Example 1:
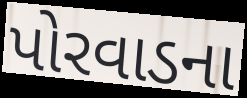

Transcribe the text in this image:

પોરવાડના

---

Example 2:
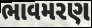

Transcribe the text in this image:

ભાવમરણ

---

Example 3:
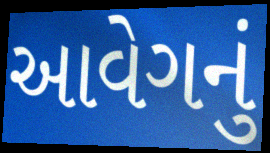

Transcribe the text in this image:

આવેગનું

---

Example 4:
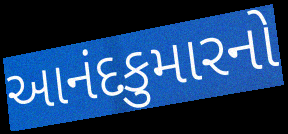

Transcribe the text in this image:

આનંદકુમારનો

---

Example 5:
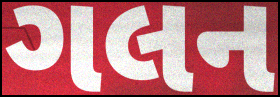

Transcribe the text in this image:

ગલન